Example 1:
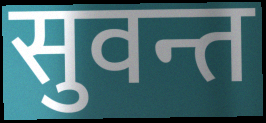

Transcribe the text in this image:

सुवन्त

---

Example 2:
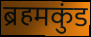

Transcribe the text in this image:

ब्रहमकुंड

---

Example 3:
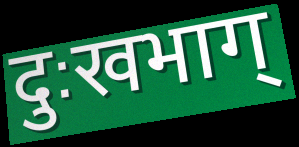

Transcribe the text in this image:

दुःखभाग्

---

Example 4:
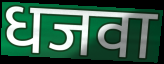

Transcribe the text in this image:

धजवा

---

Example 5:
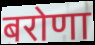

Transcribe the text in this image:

बरोणा